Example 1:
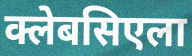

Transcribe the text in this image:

क्लेबसिएला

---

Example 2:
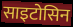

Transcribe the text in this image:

साइटोसिन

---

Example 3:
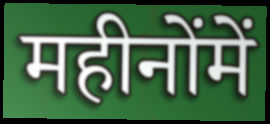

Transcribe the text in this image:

महीनोंमें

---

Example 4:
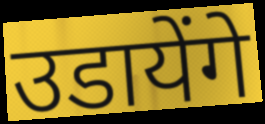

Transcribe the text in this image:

उडायेंगे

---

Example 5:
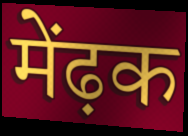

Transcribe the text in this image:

मेंढ़क